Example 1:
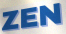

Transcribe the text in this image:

ZEN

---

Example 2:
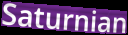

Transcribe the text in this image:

Saturnian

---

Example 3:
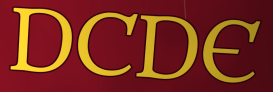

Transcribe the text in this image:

DCDE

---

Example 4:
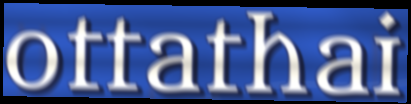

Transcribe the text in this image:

ottathai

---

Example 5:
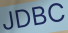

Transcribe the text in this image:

JDBC